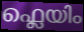
ഫ്ലെയിം